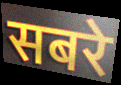
सबरे